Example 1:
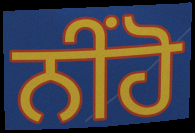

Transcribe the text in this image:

ਨੀਂਹੋ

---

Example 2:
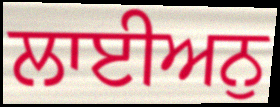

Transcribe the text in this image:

ਲਾਈਅਨੁ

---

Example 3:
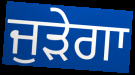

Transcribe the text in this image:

ਜੁੜੇਗਾ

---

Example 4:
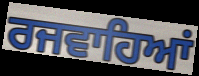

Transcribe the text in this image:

ਰਜਵਾਹਿਆਂ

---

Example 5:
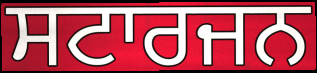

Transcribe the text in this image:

ਸਟਾਰਜਨ